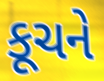
કૂચને